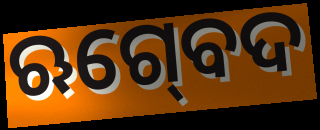
ଋଗ୍‍ବେଦ